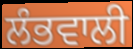
ਲੰਭਵਾਲੀ